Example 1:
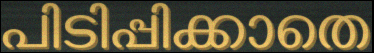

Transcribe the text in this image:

പിടിപ്പിക്കാതെ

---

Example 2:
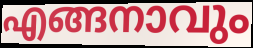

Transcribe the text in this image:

എങ്ങനാവും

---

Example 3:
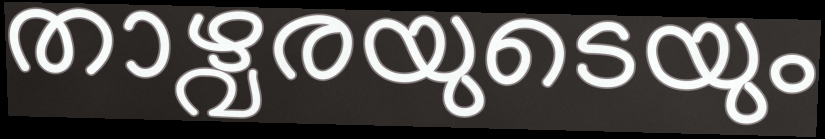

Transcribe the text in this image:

താഴ്വരയുടെയും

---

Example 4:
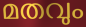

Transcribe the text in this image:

മതവും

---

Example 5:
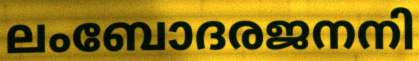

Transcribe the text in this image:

ലംബോദരജനനി